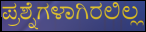
ಪ್ರಶ್ನೆಗಳಾಗಿರಲಿಲ್ಲ